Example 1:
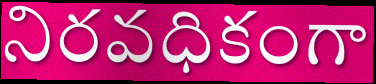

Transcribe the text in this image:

నిరవధికంగా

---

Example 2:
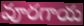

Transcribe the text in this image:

వూరగాయ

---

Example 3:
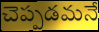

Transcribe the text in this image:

చెప్పడమనే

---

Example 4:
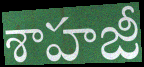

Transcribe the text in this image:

శాహజీ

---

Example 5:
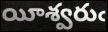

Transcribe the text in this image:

యీశ్వరుఁ